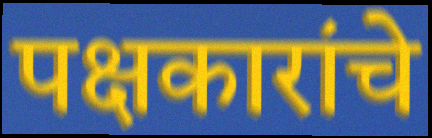
पक्षकारांचे